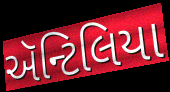
ઍન્ટિલિયા